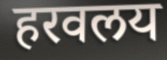
हरवलय